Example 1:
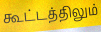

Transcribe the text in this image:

கூட்டத்திலும்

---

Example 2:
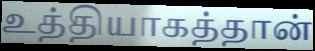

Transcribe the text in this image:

உத்தியாகத்தான்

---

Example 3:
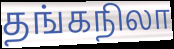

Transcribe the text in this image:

தங்கநிலா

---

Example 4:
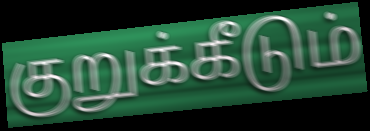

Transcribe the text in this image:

குறுக்கீடும்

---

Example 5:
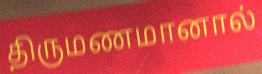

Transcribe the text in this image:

திருமணமானால்